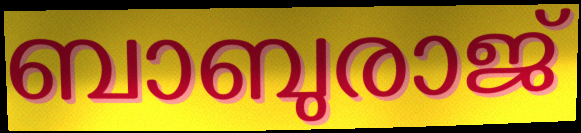
ബാബുരാജ്